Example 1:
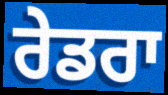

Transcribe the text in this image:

ਰੇਡਰਾ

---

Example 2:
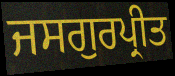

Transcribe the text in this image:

ਜਸਗੁਰਪ੍ਰੀਤ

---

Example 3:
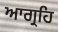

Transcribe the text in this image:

ਆਗ੍ਰਹਿ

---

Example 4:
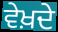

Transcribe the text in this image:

ਵੇਖ਼ਦੇ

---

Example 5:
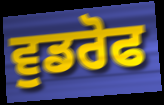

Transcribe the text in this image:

ਵੁਡਰੋਫ